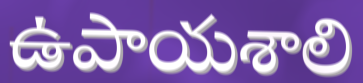
ఉపాయశాలి